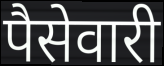
पैसेवारी